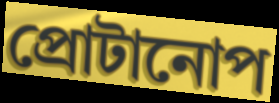
প্রোটানোপ